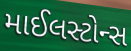
માઈલસ્ટોન્સ